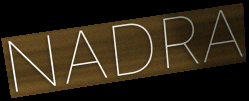
NADRA